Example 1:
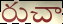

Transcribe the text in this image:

రుచా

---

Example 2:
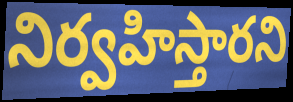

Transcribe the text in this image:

నిర్వహిస్తారని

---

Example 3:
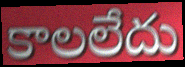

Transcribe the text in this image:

కాలలేదు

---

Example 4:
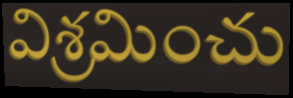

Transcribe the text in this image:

విశ్రమించు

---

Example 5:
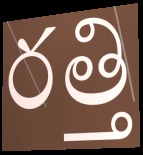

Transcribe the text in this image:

రత్తి